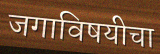
जगाविषयीचा